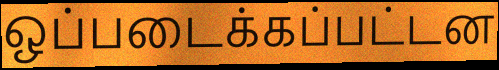
ஒப்படைக்கப்பட்டன